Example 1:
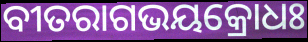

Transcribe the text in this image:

ବୀତରାଗଭୟକ୍ରୋଧଃ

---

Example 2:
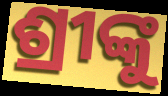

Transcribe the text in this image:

ଶ୍ରୀଙ୍କୁ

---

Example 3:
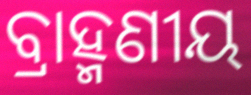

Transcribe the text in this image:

ବ୍ରାହ୍ମଣୀୟ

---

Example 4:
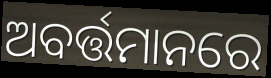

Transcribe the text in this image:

ଅବର୍ତ୍ତମାନରେ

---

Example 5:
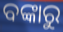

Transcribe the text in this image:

ବଙ୍କାରୁ